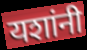
यशांनी